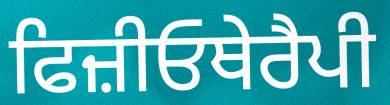
ਫਿਜ਼ੀਓਥੇਰੈਪੀ